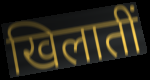
खिलातीं